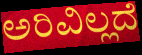
ಅರಿವಿಲ್ಲದೆ